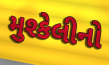
મુશ્કેલીનો